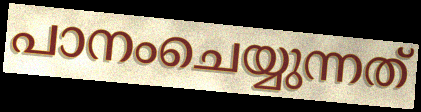
പാനംചെയ്യുന്നത്